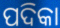
ପଦିକା